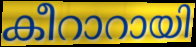
കീറാറായി